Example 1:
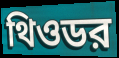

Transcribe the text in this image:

থিওডর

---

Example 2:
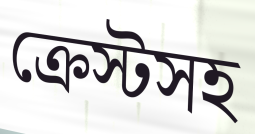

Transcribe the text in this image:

ক্রেস্টসহ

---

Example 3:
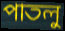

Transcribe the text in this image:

পাতলু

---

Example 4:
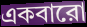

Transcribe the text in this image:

একবারো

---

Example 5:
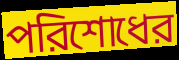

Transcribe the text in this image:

পরিশোধের